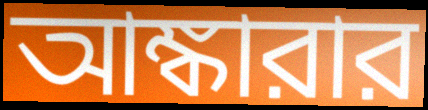
আঙ্কারার